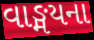
વાઙ્મયના